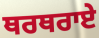
ਥਰਥਰਾਏ